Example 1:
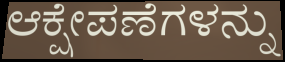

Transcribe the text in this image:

ಆಕ್ಷೇಪಣೆಗಳನ್ನು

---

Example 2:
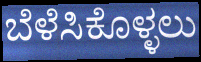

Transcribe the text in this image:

ಬೆಳೆಸಿಕೊಳ್ಳಲು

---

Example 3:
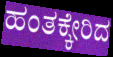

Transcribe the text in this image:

ಹಂತಕ್ಕೇರಿದ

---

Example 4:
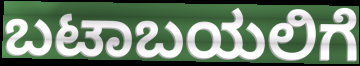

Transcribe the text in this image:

ಬಟಾಬಯಲಿಗೆ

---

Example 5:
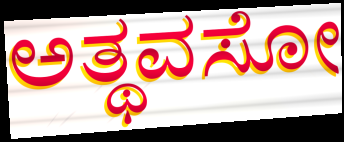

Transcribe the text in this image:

ಅತ್ಥವಸೋ